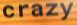
crazy